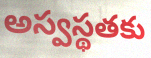
అస్వస్థతకు